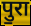
पु॒रा